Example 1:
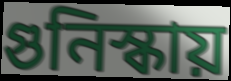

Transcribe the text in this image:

গুনিস্কায়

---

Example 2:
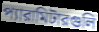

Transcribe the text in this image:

প্যারামিটারগুলি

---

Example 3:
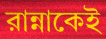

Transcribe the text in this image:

রান্নাকেই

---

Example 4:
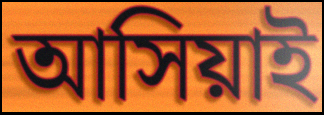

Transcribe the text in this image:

আসিয়াই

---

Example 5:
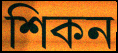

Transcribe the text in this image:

শিকন